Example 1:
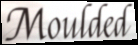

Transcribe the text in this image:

Moulded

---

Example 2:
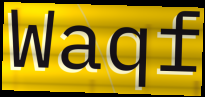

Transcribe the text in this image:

Waqf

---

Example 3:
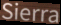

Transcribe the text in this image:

Sierra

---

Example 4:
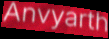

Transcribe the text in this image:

Anvyarth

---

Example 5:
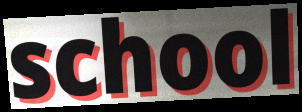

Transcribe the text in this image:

school